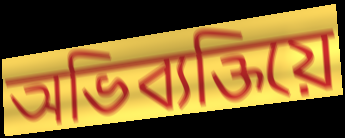
অভিব্যক্তিয়ে